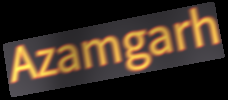
Azamgarh